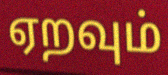
ஏறவும்